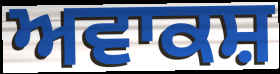
ਅਵਾਕਸ਼